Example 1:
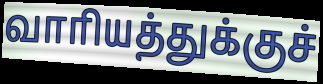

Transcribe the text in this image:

வாரியத்துக்குச்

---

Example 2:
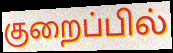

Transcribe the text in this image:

குறைப்பில்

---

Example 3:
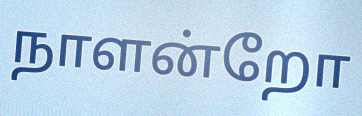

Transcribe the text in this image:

நாளன்றோ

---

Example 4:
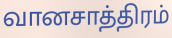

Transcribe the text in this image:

வானசாத்திரம்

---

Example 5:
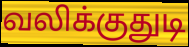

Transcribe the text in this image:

வலிக்குதுடி